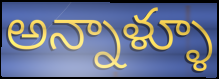
అన్నాళ్ళూ